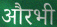
औरभी